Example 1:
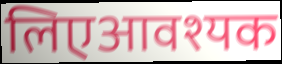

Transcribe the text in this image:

लिएआवश्यक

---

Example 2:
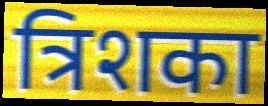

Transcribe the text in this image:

त्रिशका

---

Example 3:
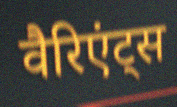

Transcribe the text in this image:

वैरिएंट्स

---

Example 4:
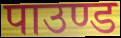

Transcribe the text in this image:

पाउण्‍ड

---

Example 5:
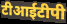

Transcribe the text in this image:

टीआईटीपी